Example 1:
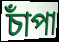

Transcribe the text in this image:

চাঁপা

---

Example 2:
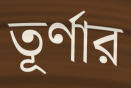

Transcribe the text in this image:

তূর্ণার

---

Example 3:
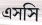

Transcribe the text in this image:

এসসি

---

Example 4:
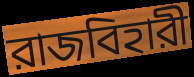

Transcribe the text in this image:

রাজবিহারী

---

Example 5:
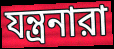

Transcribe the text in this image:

যন্ত্রনারা